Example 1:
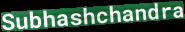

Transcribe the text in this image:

Subhashchandra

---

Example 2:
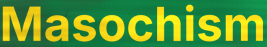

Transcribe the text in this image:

Masochism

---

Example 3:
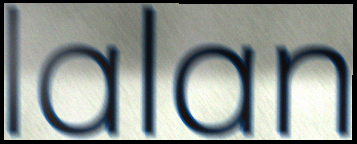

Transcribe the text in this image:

lalan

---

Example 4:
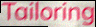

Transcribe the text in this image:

Tailoring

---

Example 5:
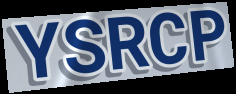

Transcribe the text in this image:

YSRCP